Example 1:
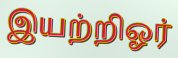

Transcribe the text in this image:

இயற்றிஓர்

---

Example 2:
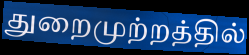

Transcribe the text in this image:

துறைமுற்றத்தில்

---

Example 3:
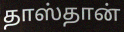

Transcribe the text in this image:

தாஸ்தான்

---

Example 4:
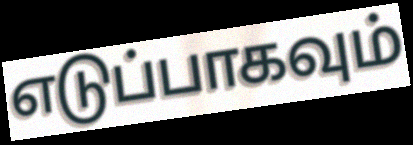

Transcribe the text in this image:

எடுப்பாகவும்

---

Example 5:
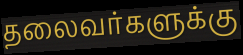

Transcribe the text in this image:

தலைவர்களுக்கு